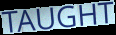
TAUGHT